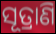
ସୂତ୍ରାଣି